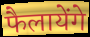
फैलायेंगे